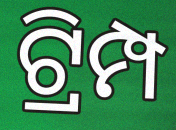
ଟ୍ରିମ୍ପ